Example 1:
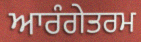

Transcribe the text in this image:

ਆਰੰਗੇਤਰਮ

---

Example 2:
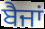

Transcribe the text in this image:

ਬੈਜਾਂ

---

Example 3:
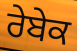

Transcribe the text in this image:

ਰੇਬੇਕ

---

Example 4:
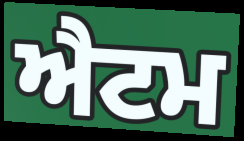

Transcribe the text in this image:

ਐਟਮ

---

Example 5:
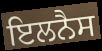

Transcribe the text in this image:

ਇਲਨੈਸ